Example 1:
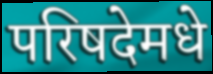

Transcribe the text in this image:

परिषदेमधे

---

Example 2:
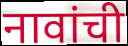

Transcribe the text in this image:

नावांची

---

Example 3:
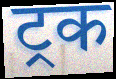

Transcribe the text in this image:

ट्रक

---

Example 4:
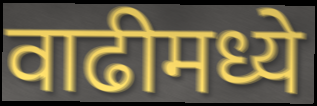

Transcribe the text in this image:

वाढीमध्ये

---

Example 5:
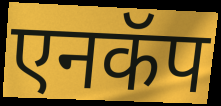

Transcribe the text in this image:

एनकॅप